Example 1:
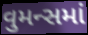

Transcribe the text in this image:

વુમન્સમાં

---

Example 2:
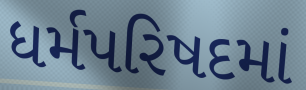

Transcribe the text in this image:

ધર્મપરિષદમાં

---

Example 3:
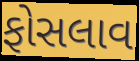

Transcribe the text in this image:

ફોસલાવ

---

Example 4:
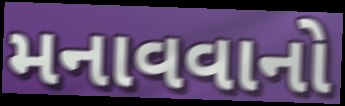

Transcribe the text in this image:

મનાવવાનો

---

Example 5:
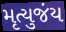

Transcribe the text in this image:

મૃત્યુજંય